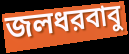
জলধরবাবু